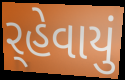
ર્‌હેવાયું